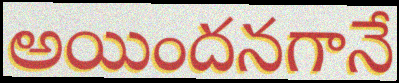
అయిందనగానే